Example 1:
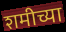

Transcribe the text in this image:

शमीच्या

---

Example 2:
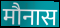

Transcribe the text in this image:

मौनास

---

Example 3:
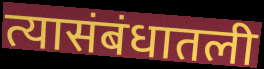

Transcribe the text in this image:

त्यासंबंधातली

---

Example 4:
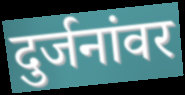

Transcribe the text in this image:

दुर्जनांवर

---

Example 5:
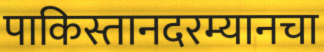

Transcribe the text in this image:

पाकिस्तानदरम्यानचा